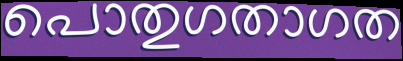
പൊതുഗതാഗത